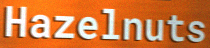
Hazelnuts